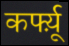
कर्फ्य़ू